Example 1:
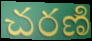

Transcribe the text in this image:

చరణి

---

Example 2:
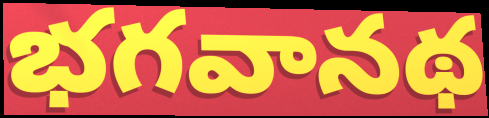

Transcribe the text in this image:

భగవానథ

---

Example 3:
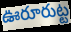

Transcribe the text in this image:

ఊరూరుట్ట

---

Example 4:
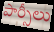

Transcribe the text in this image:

పార్సీలు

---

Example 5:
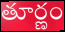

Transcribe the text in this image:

తూర్ణం